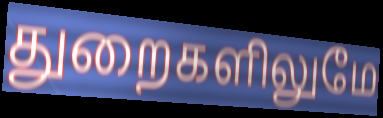
துறைகளிலுமே